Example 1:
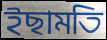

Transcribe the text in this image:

ইছামতি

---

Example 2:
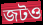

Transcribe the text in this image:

জটও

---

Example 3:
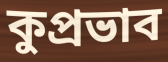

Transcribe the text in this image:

কুপ্রভাব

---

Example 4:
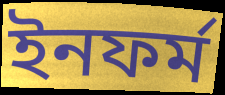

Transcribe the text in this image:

ইনফর্ম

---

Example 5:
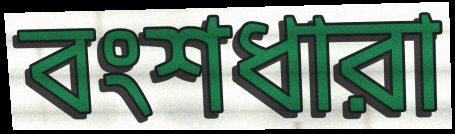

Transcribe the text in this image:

বংশধারা